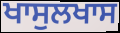
ਖਾਸੁਲਖਾਸ